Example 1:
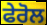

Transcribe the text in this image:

ਫੇਰੋਲ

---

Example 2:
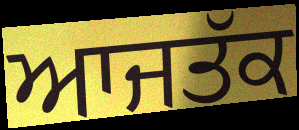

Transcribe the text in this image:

ਆਜਤੱਕ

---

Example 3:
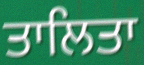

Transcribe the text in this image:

ਤਾਲਿਤਾ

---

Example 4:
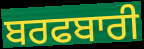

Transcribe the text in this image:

ਬਰਫਬਾਰੀ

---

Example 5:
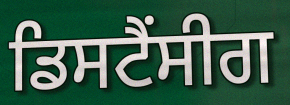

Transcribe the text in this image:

ਡਿਸਟੈਂਸੀਗ